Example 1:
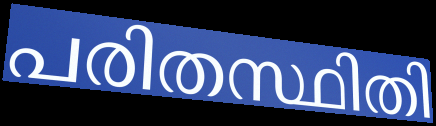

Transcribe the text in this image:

പരിതസ്ഥിതി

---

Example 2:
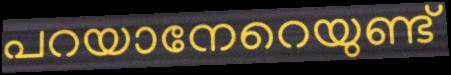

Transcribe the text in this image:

പറയാനേറെയുണ്ട്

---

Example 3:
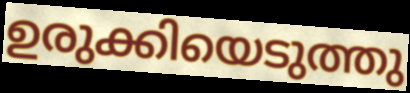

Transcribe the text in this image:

ഉരുക്കിയെടുത്തു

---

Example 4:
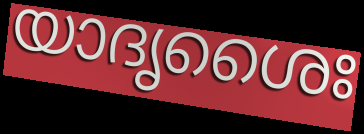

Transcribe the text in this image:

യാദൃശൈഃ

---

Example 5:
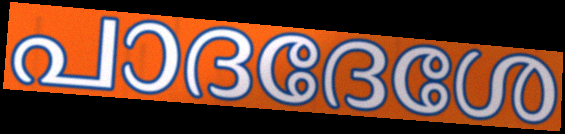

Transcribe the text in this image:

പാദദേശേ